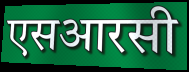
एसआरसी